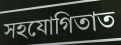
সহযোগিতাত